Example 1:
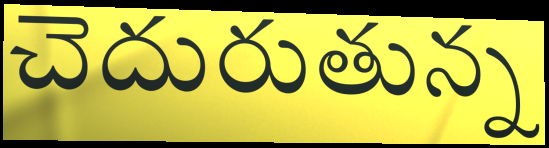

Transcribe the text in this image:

చెదురుతున్న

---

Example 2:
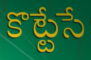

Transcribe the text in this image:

కొట్టేసే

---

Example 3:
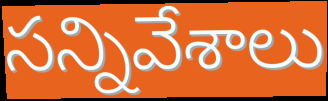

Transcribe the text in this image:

సన్నివేశాలు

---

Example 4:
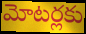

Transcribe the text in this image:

మోటర్లకు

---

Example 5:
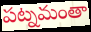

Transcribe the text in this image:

పట్నమంతా